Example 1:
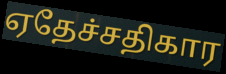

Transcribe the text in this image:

ஏதேச்சதிகார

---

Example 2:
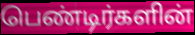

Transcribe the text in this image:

பெண்டிர்களின்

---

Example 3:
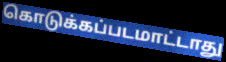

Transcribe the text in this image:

கொடுக்கப்படமாட்டாது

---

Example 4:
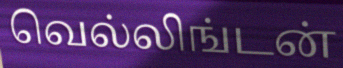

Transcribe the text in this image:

வெல்லிங்டன்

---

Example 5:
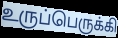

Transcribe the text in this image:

உருப்பெருக்கி